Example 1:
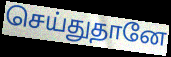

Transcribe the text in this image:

செய்துதானே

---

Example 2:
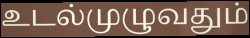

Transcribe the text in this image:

உடல்முழுவதும்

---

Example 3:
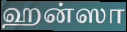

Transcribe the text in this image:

ஹன்ஸா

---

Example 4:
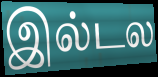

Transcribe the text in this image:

இல்டல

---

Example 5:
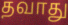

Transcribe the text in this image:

தவாது